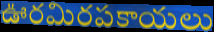
ఊరమిరపకాయలు